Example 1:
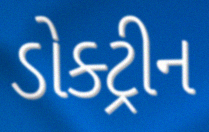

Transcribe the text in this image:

ડોક્ટ્રીન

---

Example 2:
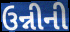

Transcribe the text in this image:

ઉન્નીની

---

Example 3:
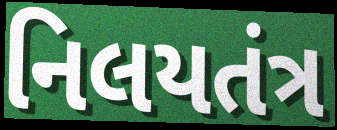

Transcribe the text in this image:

નિલયતંત્ર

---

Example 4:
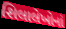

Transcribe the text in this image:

શિલાલેખોનાં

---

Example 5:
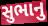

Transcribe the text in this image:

સુભાનુ